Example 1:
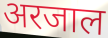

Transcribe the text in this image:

अरजाल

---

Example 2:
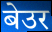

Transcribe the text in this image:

बेउर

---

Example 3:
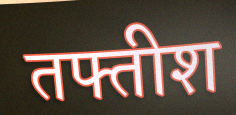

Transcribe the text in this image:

तफ्तीश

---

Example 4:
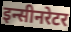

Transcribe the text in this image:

इन्सीनरेटर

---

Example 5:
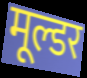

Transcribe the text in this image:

मूल्डर